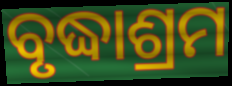
ବୃଦ୍ଧାଶ୍ରମ